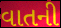
વાતની